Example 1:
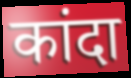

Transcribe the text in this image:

कांदा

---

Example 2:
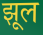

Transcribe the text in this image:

झूल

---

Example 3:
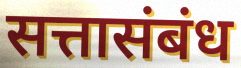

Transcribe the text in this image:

सत्तासंबंध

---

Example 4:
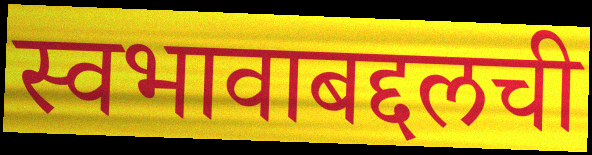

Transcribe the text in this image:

स्वभावाबद्दलची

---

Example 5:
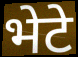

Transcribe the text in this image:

भेटे